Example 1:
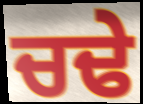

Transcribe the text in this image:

ਚਢੇ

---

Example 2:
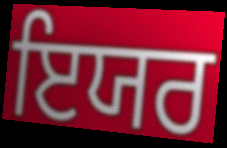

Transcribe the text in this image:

ਇਯਰ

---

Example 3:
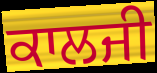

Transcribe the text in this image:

ਕਾਲਜੀ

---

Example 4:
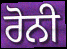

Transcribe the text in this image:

ਰੋਨੀ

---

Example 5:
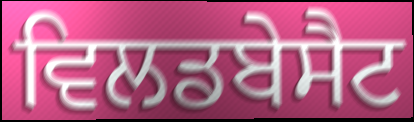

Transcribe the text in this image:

ਵਿਲਡਬੇਸੈਟ